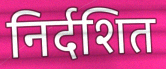
निर्दशित